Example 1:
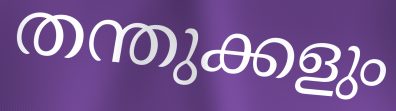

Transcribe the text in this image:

തന്തുക്കളും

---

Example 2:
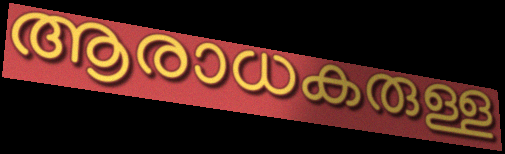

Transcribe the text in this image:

ആരാധകരുള്ള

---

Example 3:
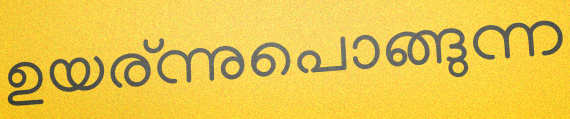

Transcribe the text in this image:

ഉയര്ന്നുപൊങ്ങുന്ന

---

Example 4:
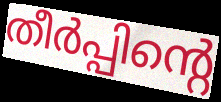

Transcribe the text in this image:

തീർപ്പിന്റെ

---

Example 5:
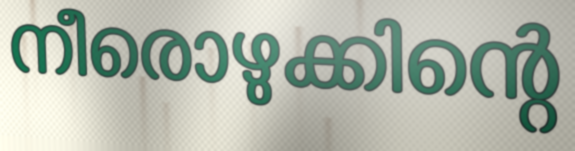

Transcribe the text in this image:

നീരൊഴുക്കിന്റെ